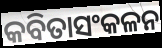
କବିତାସଂକଳନ